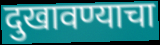
दुखावण्याचा